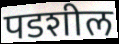
पडशील